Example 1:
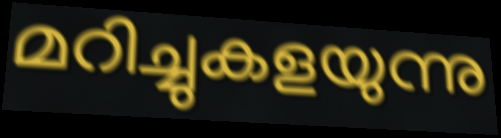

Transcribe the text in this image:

മറിച്ചുകളയുന്നു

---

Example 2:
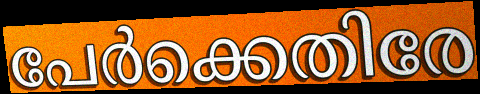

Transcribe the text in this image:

പേർക്കെതിരേ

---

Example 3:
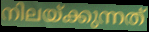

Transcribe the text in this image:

നിലയ്ക്കുന്നത്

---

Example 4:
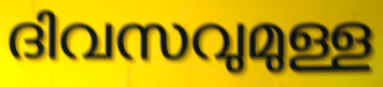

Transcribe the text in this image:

ദിവസവുമുള്ള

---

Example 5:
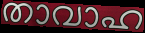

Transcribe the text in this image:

താവാഹ